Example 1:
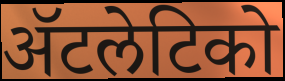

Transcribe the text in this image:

ॲटलेटिको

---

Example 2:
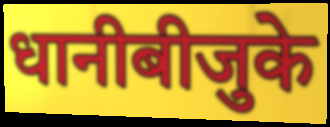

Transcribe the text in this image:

धानीबीजुके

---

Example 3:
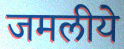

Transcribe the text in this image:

जमलीये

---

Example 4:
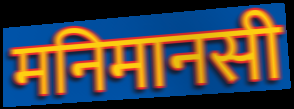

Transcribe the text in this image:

मनिमानसी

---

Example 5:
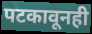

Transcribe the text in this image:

पटकावूनही